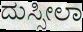
ದುಸ್ಸೀಲಾ